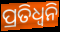
ପ୍ରତିଧ୍ବନି